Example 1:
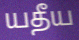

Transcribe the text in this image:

யதீய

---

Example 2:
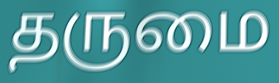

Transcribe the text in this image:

தருமை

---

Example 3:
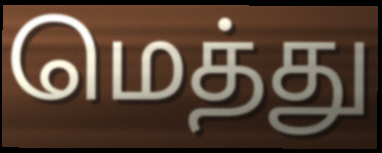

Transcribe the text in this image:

மெத்து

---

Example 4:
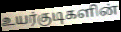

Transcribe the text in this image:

உயர்குடிகளின்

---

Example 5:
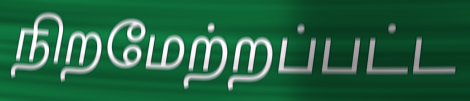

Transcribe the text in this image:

நிறமேற்றப்பட்ட